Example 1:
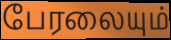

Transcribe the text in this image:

பேரலையும்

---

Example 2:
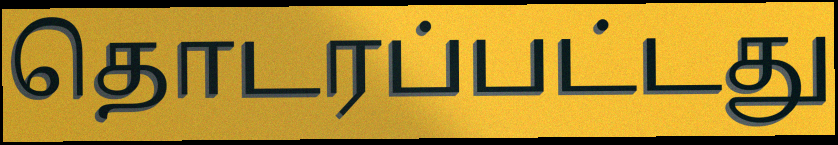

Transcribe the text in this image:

தொடரப்பட்டது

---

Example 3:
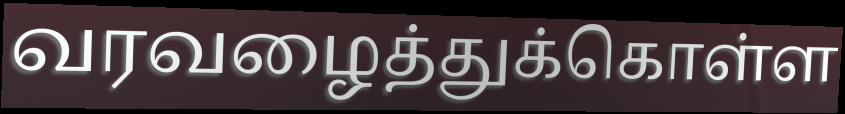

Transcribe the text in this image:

வரவழைத்துக்கொள்ள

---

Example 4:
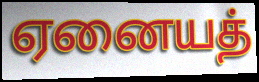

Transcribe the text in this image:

ஏனையத்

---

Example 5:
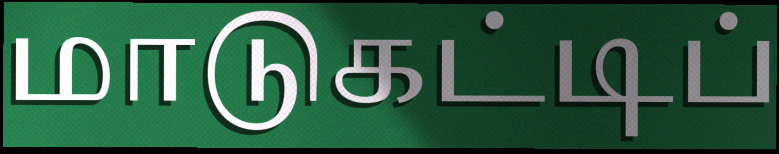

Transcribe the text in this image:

மாடுகட்டிப்